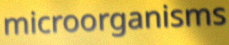
microorganisms